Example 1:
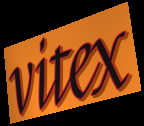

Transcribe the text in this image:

vitex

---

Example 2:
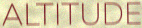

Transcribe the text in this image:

ALTITUDE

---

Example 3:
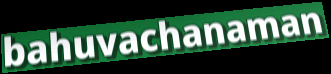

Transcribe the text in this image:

bahuvachanaman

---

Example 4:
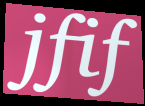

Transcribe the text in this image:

jfif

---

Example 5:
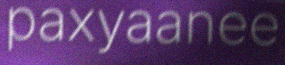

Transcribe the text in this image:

paxyaanee